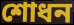
শোধন